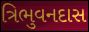
ત્રિભુવનદાસ